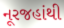
નૂરજહાંથી